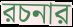
রচনার